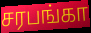
சரபங்கா